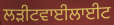
ਲੜੀਟਵਾਈਲਾਈਟ